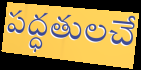
పద్ధతులచే